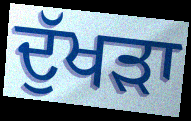
ਦੁੱਖਡ਼ਾ